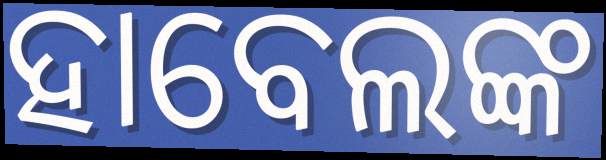
ହାବେଲଙ୍କ